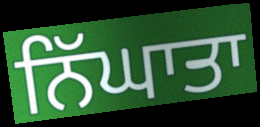
ਨਿੱਘਾਤਾ